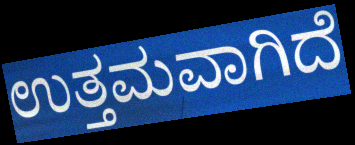
ಉತ್ತಮವಾಗಿದೆ